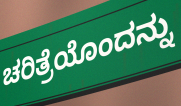
ಚರಿತ್ರೆಯೊಂದನ್ನು